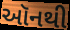
ઑનથી